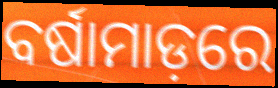
ବର୍ଷାମାଡ଼ରେ